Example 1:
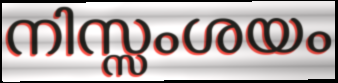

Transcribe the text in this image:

നിസ്സംശയം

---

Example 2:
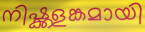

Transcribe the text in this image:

നിഷ്ക്കളങ്കമായി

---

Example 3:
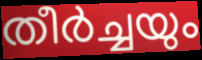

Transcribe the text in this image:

തീർച്ചയും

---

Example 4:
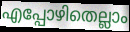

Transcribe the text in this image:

എപ്പോഴിതെല്ലാം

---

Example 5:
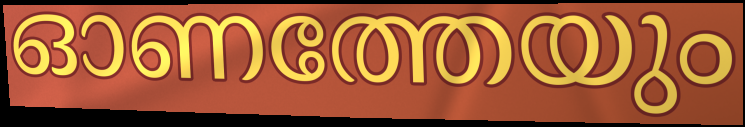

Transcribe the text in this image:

ഓണത്തേയും